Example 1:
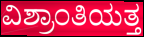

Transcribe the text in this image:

ವಿಶ್ರಾಂತಿಯತ್ತ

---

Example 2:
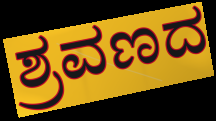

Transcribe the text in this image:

ಶ್ರವಣದ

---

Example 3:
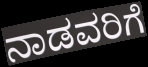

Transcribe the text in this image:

ನಾಡವರಿಗೆ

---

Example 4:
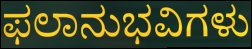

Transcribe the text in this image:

ಫಲಾನುಭವಿಗಳು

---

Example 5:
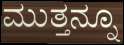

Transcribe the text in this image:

ಮುತ್ತನ್ನೂ